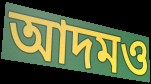
আদমও